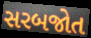
સરબજોત